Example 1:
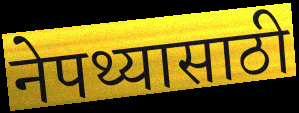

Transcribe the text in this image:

नेपथ्यासाठी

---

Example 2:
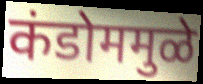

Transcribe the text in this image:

कंडोममुळे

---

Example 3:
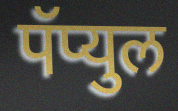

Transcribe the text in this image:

पॅप्युल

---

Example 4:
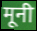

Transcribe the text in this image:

मूनी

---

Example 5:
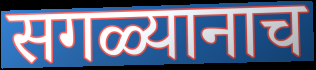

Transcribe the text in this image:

सगळ्यानाच